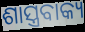
ଶାସ୍ତ୍ରବାକ୍ୟ